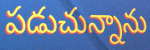
పడుచున్నాను